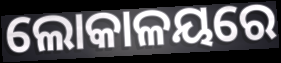
ଲୋକାଳୟରେ